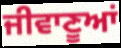
ਜੀਵਾਣੂਆਂ